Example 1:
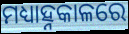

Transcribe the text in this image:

ମଧ୍ୟାହ୍ନକାଳରେ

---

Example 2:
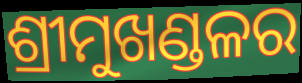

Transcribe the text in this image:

ଶ୍ରୀମୁଖଣ୍ଡଳର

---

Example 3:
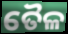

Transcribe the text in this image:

ତୈଳ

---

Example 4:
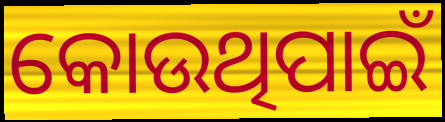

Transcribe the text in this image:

କୋଉଥିପାଇଁ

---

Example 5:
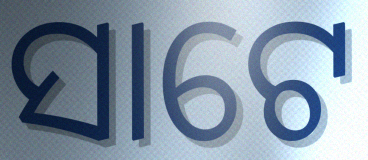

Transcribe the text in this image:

ସାଟେ